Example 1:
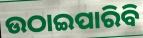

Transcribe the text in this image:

ଉଠାଇପାରିବି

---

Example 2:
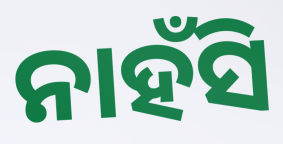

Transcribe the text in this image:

ନାହଁସି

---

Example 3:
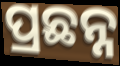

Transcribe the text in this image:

ପ୍ରଛନ୍ନ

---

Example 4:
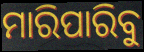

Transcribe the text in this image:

ମାରିପାରିବୁ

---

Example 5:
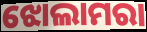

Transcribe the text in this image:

ଝୋଲାମରା